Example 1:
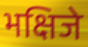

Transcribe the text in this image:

भक्षिजे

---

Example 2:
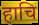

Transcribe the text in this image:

हाचि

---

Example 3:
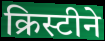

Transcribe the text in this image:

क्रिस्टीने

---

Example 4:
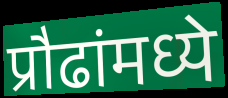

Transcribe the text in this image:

प्रौढांमध्ये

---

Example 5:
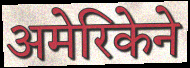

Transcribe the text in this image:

अमेरिकेने